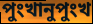
পুংখানুপুংখ